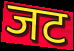
जट